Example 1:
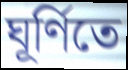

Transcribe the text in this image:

ঘূর্ণিতে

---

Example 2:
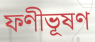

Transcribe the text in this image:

ফণীভূষণ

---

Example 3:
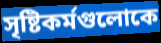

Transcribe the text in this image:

সৃষ্টিকর্মগুলোকে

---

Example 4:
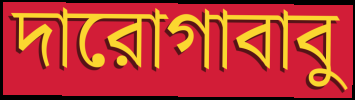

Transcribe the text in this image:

দারোগাবাবু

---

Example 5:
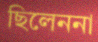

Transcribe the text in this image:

ছিলেননা